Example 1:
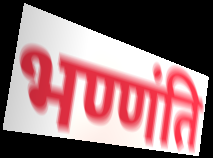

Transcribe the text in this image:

भण्णंति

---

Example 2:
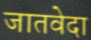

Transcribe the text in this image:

जातवेदा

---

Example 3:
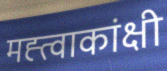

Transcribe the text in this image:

मह्त्वाकांक्षी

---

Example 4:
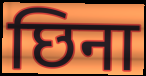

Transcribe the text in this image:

छिना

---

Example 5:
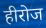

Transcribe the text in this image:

हीरोज